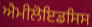
ਐਮੀਲੋਇਡਸਿਸ